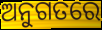
ଅନୁଗତରେ